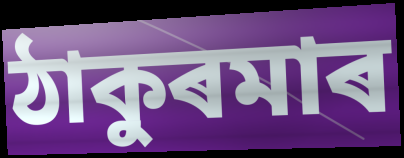
ঠাকুৰমাৰ